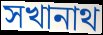
সখানাথ